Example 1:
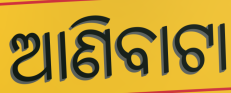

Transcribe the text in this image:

ଆଣିବାଟା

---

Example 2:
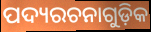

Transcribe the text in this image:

ପଦ୍ୟରଚନାଗୁଡ଼ିକ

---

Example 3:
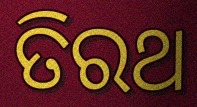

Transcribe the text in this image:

ତିରଥ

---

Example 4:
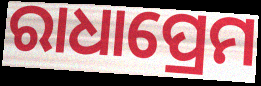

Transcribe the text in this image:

ରାଧାପ୍ରେମ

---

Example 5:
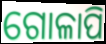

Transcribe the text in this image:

ଗୋଳାପି